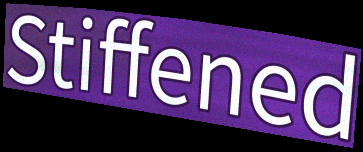
Stiffened